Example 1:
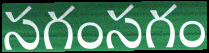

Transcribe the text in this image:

సగంసగం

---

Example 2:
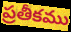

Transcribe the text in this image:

ప్రతీకము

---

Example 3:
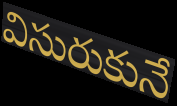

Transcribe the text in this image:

విసురుకునే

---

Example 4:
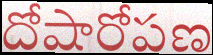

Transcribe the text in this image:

దోషారోపణ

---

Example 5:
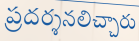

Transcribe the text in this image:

ప్రదర్శనలిచ్చారు